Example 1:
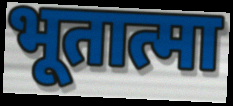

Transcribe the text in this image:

भूतात्मा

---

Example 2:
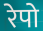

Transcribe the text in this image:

रेपो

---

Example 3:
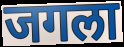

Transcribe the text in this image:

जगला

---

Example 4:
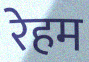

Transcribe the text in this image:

रेहम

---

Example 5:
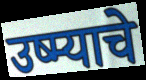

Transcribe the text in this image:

उष्म्याचे